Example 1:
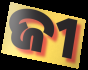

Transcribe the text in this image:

ଜୀ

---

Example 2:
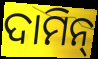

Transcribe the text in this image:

ଦାମିନ୍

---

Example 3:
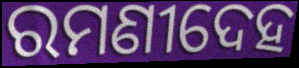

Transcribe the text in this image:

ରମଣୀଦେହ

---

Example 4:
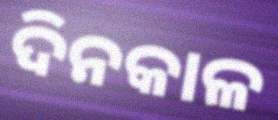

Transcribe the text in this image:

ଦିନକାଳ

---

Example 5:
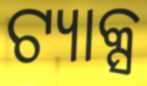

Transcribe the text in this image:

ଟ୍ୟାକ୍ସ